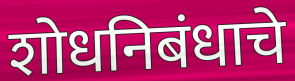
शोधनिबंधाचे